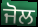
ਜੋਲ